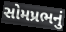
સોમપ્રભનું